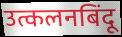
उत्कलनबिंदू